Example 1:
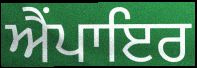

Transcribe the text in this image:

ਐੰਪਾਇਰ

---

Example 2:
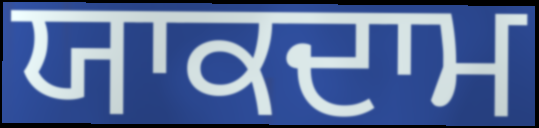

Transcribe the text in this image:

ਯਾਕਦਾਮ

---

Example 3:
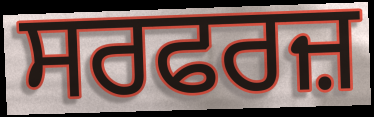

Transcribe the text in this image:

ਸਰਫਰਜ਼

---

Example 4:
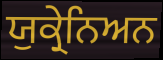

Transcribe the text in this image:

ਯੁਕ੍ਰੇਨਿਅਨ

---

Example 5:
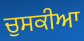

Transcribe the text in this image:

ਚੁਸਕੀਆ